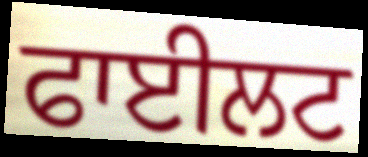
ਫਾਈਲਟ